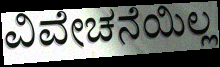
ವಿವೇಚನೆಯಿಲ್ಲ